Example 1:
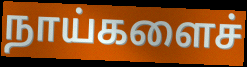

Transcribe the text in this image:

நாய்களைச்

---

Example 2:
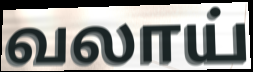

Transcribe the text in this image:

வலாய்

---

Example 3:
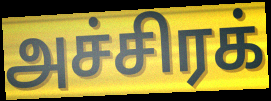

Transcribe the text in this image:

அச்சிரக்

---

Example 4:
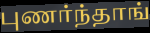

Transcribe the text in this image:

புணர்ந்தாங்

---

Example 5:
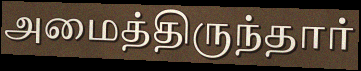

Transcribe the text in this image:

அமைத்திருந்தார்